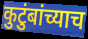
कुटुंबांच्याच